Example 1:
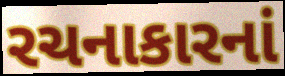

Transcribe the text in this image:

રચનાકારનાં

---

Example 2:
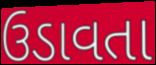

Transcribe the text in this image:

ઉડાવતા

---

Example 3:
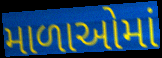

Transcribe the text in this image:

માળાઓમાં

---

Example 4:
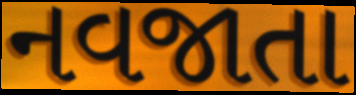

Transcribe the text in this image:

નવજાતા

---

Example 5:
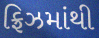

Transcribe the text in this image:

ફ્રિઝમાંથી